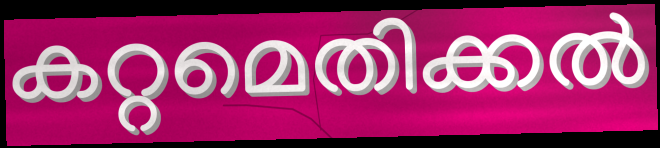
കറ്റമെതിക്കൽ